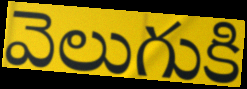
వెలుగుకి